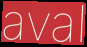
aval